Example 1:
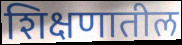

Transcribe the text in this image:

शिक्षणातील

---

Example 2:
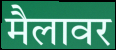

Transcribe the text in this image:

मैलावर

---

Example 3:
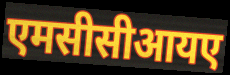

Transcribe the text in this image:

एमसीसीआयए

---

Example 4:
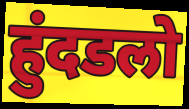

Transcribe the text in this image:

हुंदडलो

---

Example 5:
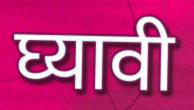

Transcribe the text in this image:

घ्यावी